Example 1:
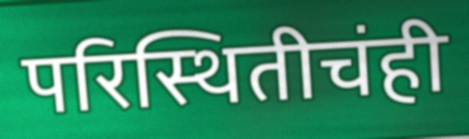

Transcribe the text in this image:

परिस्थितीचंही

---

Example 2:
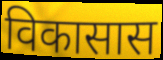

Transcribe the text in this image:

विकासास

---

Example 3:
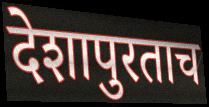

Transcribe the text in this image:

देशापुरताच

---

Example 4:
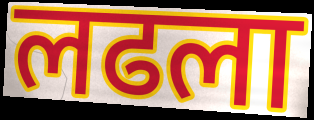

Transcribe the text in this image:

लढला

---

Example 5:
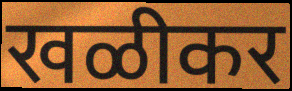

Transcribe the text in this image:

खळीकर